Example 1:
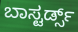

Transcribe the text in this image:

ಬಾಸ್ಟರ್ಡ್ಸ್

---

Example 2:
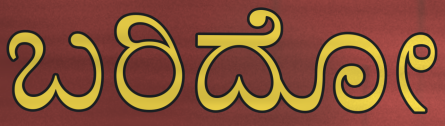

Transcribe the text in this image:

ಬರಿದೋ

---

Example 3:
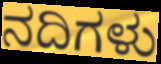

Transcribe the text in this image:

ನದಿಗಳು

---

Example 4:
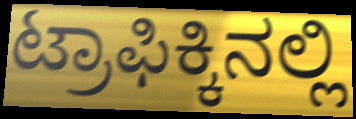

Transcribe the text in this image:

ಟ್ರಾಫಿಕ್ಕಿನಲ್ಲಿ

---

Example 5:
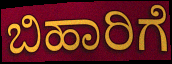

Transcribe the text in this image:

ಬಿಹಾರಿಗೆ